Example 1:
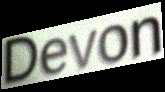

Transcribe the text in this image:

Devon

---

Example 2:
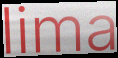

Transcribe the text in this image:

lima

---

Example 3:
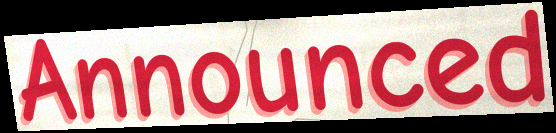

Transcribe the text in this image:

Announced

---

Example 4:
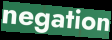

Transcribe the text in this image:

negation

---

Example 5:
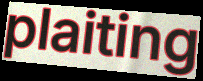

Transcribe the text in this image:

plaiting